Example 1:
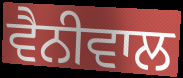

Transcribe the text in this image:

ਵੈਨੀਵਾਲ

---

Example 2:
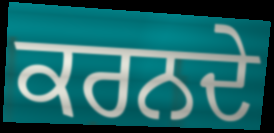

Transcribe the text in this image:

ਕਰਨਦੇ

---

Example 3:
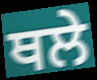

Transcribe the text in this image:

ਥਲੇ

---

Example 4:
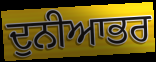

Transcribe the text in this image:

ਦੁਨੀਆਭਰ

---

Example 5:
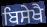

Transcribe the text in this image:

ਬਿਸੇਖੈ